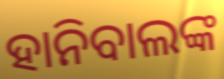
ହାନିବାଲଙ୍କ